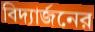
বিদ্যার্জনের